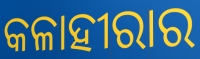
କଳାହୀରାର